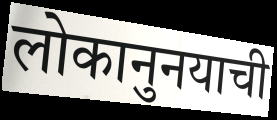
लोकानुनयाची